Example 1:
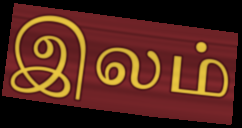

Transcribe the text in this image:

இலம்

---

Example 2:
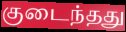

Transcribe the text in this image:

குடைந்தது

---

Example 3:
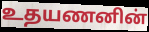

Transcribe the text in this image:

உதயணனின்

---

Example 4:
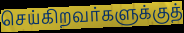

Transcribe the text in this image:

செய்கிறவர்களுக்குத்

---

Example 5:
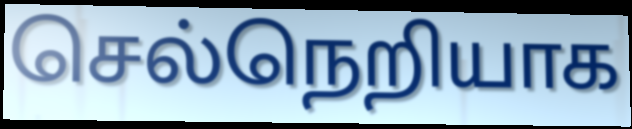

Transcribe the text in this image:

செல்நெறியாக